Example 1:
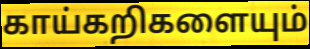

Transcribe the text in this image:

காய்கறிகளையும்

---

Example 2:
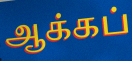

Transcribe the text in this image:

ஆக்கப்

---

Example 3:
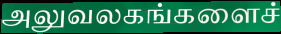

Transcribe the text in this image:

அலுவலகங்களைச்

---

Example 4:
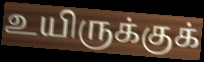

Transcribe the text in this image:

உயிருக்குக்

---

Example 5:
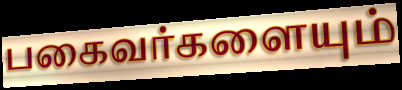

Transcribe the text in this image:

பகைவர்களையும்